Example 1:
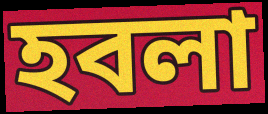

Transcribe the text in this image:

হবলা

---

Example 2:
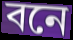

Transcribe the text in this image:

বনে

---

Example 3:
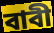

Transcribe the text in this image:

বাবী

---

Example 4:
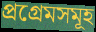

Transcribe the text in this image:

প্ৰগ্ৰেমসমূহ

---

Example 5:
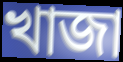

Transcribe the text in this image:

খাজা